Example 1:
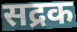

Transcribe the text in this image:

सद्रक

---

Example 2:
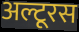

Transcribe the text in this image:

अल्टूरस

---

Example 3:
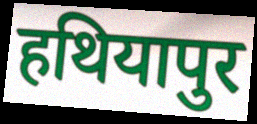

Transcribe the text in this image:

हथियापुर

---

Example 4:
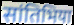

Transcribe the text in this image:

सांतिभिया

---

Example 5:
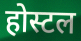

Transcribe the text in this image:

होस्टल